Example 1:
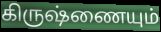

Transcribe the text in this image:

கிருஷ்ணையும்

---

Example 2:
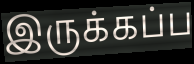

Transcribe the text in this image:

இருக்கப்ப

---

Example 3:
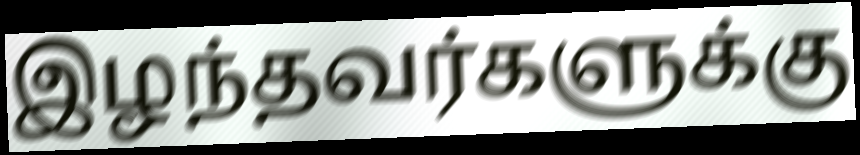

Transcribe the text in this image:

இழந்தவர்களுக்கு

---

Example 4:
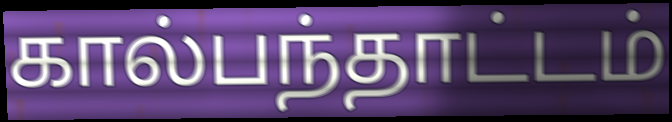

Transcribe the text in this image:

கால்பந்தாட்டம்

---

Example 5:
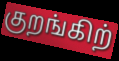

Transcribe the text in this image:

குறங்கிற்